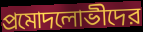
প্রমোদলোভীদের